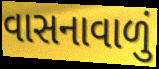
વાસનાવાળું